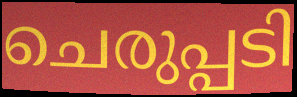
ചെരുപ്പടി